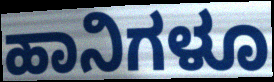
ಹಾನಿಗಳೂ